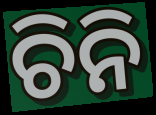
ଚିନି